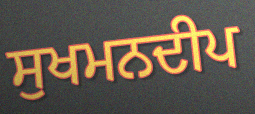
ਸੁਖਮਨਦੀਪ